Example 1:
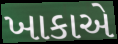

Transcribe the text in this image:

ખાકાએ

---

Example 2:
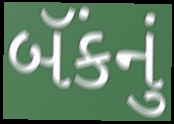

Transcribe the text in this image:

બૅંકનું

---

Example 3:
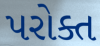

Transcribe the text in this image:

પરોક્ત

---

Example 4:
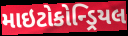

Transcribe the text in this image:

માઇટોકોન્ડ્રિયલ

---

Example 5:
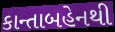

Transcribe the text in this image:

કાન્તાબહેનથી